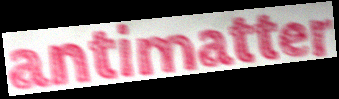
antimatter